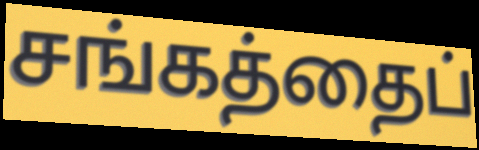
சங்கத்தைப்